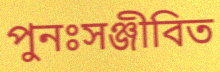
পুনঃসঞ্জীবিত